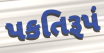
પકતિરૂપં